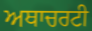
ਅਥਾਚਰਟੀ